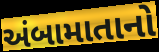
અંબામાતાનો